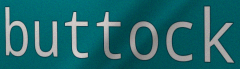
buttock